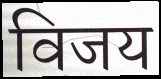
विजय